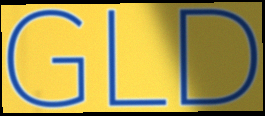
GLD